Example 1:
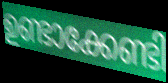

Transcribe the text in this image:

ഉണ്ടാക്കേണ്ടി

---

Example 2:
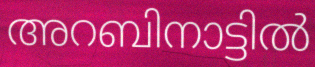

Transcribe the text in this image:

അറബിനാട്ടിൽ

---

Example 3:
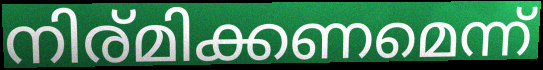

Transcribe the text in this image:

നിര്മിക്കണമെന്ന്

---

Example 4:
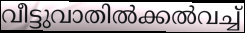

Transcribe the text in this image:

വീട്ടുവാതിൽക്കൽവച്ച്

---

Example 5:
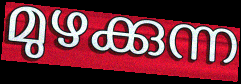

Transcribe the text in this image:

മുഴക്കുന്ന